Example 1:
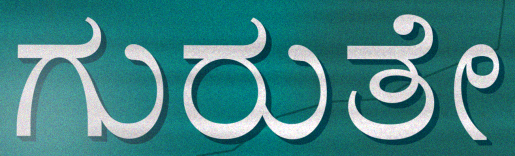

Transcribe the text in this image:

ಗುರುತೇ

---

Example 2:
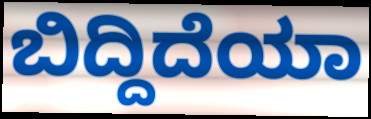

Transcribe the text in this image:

ಬಿದ್ದಿದೆಯಾ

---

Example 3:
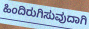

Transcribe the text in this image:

ಹಿಂದಿರುಗಿಸುವುದಾಗಿ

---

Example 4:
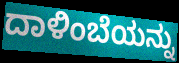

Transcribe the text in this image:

ದಾಳಿಂಬೆಯನ್ನು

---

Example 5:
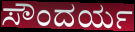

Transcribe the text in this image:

ಸೌಂದರ್ಯ